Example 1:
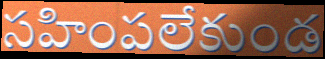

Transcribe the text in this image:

సహింపలేకుండ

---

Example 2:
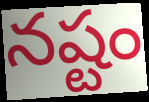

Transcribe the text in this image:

నష్టం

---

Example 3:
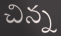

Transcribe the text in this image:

చిన్న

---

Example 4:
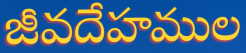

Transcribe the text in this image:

జీవదేహముల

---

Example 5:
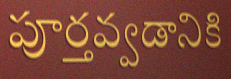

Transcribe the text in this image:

పూర్తవ్వడానికి